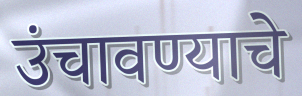
उंचावण्याचे